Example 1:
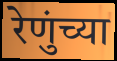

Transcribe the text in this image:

रेणुंच्या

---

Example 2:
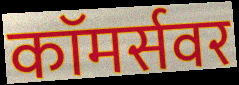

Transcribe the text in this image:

कॉमर्सवर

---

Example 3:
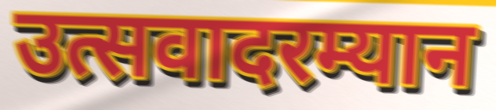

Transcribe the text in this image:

उत्सवादरम्यान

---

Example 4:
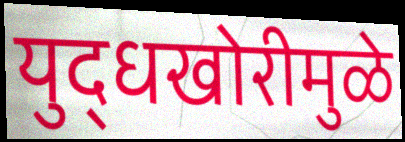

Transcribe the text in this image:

युद्धखोरीमुळे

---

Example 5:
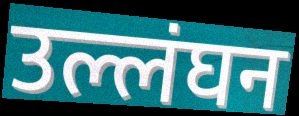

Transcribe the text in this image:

उल्लंघन